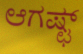
ಆಗಷ್ಟ್